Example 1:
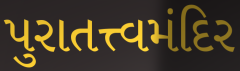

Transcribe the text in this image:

પુરાતત્ત્વમંદિર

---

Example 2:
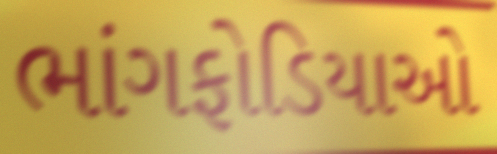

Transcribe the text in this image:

ભાંગફોડિયાઓ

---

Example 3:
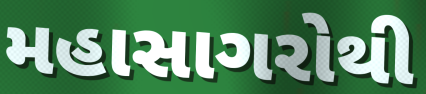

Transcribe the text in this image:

મહાસાગરોથી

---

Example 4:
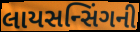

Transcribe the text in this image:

લાયસન્સિંગની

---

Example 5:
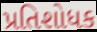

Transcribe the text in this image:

પ્રતિશોધક